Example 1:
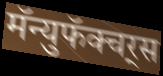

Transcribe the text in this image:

मॅन्युफॅक्चर्स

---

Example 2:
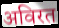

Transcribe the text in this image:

अविरत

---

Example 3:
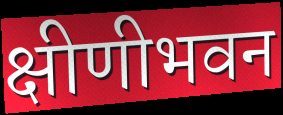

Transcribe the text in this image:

क्षीणीभवन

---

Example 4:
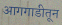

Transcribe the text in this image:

आगगाडीतून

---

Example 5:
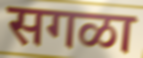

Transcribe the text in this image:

सगळा